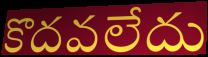
కొదవలేదు